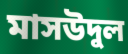
মাসউদুল